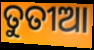
ତୁତୀଆ